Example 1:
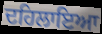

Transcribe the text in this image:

ਦਹਿਲਾਇਆ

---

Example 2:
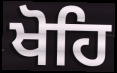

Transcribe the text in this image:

ਖੋਹਿ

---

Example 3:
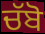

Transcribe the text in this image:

ਚੱਬੋ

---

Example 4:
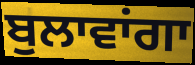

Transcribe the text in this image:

ਬੁਲਾਵਾਂਗਾ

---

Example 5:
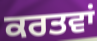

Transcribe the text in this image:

ਕਰਤਵਾਂ